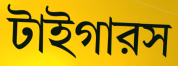
টাইগারস